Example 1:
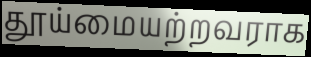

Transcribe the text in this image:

தூய்மையற்றவராக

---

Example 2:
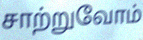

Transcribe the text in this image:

சாற்றுவோம்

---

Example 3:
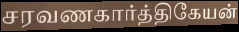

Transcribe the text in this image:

சரவணகார்த்திகேயன்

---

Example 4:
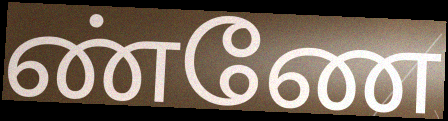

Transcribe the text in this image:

ண்ணே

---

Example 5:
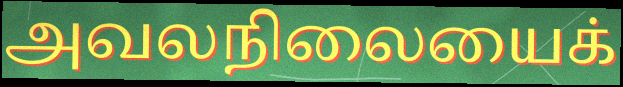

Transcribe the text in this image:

அவலநிலையைக்